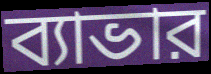
ব্যাভার